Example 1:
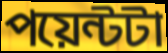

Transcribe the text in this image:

পয়েন্টটা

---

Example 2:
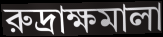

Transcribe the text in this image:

রুদ্রাক্ষমালা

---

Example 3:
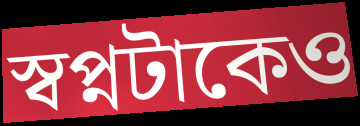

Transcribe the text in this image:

স্বপ্নটাকেও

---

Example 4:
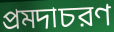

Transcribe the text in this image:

প্রমদাচরণ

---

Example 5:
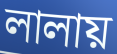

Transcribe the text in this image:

লালায়